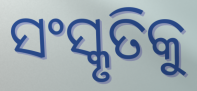
ସଂସ୍କୃତିକୁ